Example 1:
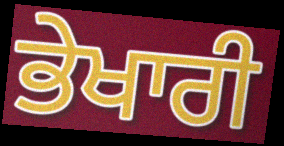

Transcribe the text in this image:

ਭੇਖਾਰੀ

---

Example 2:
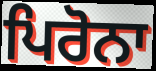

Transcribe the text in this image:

ਪਿਰੋਨਾ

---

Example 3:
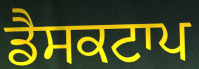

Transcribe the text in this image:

ਡੈਸਕਟਾਪ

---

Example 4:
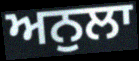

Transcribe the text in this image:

ਅਨੁਲਾ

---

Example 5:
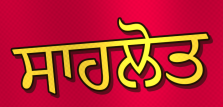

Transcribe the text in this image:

ਸਾਹਲੋਤ